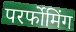
परर्फोमिंग